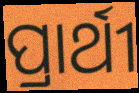
ପ୍ରାର୍ଥୀ